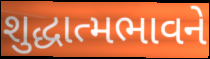
શુદ્ધાત્મભાવને